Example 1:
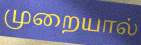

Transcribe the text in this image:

முறையால்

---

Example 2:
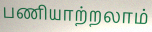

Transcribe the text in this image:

பணியாற்றலாம்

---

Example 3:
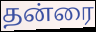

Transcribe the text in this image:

தன்ரை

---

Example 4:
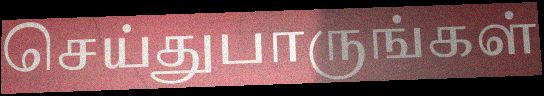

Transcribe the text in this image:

செய்துபாருங்கள்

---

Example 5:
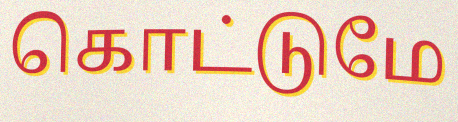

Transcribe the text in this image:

கொட்டுமே